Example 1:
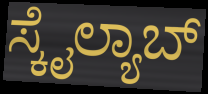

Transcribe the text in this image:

ಸ್ಕೈಲ್ಯಾಬ್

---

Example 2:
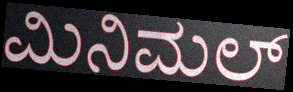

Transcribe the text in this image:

ಮಿನಿಮಲ್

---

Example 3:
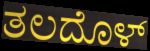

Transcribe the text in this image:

ತಲದೊಳ್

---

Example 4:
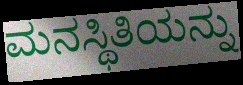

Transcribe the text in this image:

ಮನಸ್ಥಿತಿಯನ್ನು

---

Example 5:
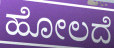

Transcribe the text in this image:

ಹೋಲದೆ